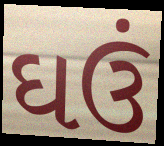
ઘઉં